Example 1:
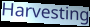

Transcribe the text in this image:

Harvesting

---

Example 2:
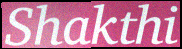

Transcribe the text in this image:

Shakthi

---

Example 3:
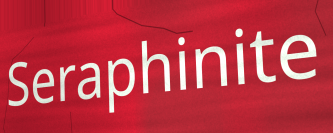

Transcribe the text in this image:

Seraphinite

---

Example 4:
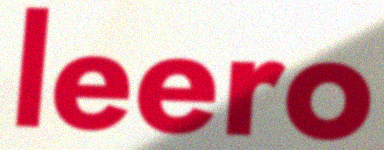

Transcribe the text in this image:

leero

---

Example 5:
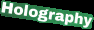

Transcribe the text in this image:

Holography